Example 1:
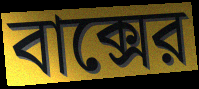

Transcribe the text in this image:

বাক্সের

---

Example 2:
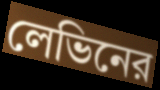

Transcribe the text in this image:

লেভিনের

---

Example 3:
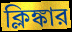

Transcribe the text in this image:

ক্লিঙ্কার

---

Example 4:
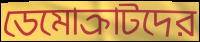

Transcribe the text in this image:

ডেমোক্রাটদের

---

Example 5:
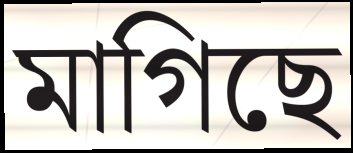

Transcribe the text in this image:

মাগিছে